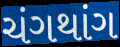
ચંગથાંગ